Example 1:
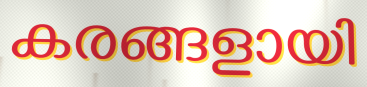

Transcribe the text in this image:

കരങ്ങളായി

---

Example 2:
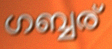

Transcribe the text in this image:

ഗബ്ബര്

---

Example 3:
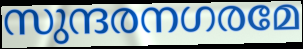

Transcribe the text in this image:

സുന്ദരനഗരമേ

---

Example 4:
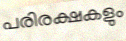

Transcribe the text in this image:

പരിരക്ഷകളും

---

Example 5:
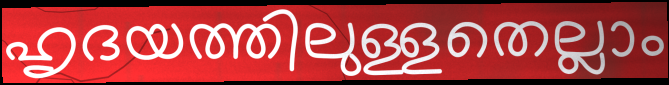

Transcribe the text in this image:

ഹൃദയത്തിലുള്ളതെല്ലാം